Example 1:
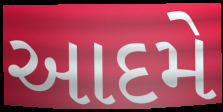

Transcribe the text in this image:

આદમે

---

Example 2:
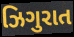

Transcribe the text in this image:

ઝિગુરાત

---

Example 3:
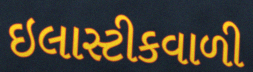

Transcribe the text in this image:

ઇલાસ્ટીકવાળી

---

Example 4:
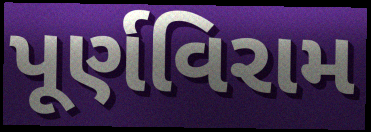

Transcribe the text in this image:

પૂર્ણવિરામ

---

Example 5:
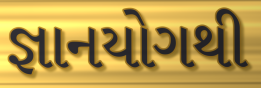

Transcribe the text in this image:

જ્ઞાનયોગથી